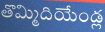
తొమ్మిదియేండ్ల